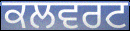
ਕਲਵਰਟ